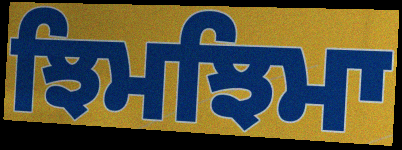
ਝਿਮਝਿਮਾ